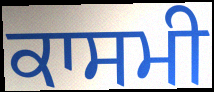
ਕਾਸਮੀ